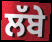
ਲੱਬੇ